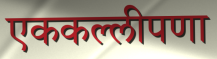
एककल्लीपणा